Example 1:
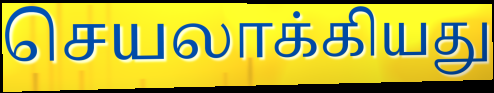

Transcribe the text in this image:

செயலாக்கியது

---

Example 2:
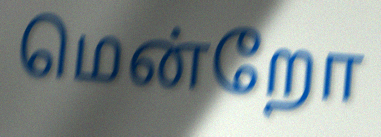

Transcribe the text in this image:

மென்றோ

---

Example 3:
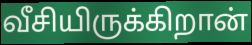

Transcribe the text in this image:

வீசியிருக்கிறான்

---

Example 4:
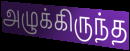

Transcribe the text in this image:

அழுக்கிருந்த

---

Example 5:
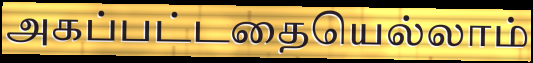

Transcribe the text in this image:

அகப்பட்டதையெல்லாம்